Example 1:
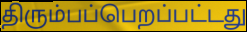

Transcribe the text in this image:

திரும்பப்பெறப்பட்டது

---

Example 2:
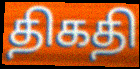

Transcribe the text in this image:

திகதி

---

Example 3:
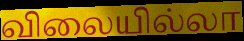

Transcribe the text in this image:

விலையில்லா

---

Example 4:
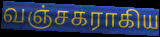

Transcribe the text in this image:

வஞ்சகராகிய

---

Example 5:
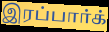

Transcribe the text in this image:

இரப்பார்க்